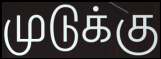
முடுக்கு